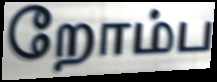
றோம்ப